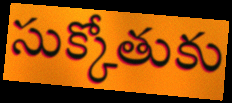
సుక్కోతుకు